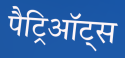
पैट्रिऑट्स